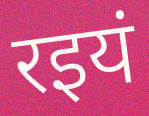
रइयं